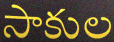
సాకుల